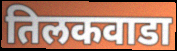
तिलकवाडा